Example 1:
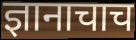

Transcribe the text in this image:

ज्ञानाचाच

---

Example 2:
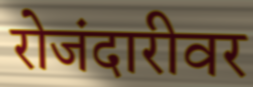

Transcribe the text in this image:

रोजंदारीवर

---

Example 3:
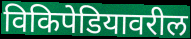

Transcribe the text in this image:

विकिपेडियावरील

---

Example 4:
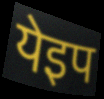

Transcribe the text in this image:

येइप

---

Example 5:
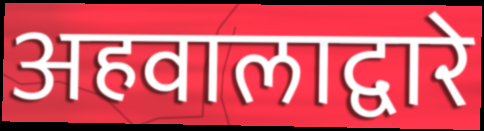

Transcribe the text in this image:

अहवालाद्वारे